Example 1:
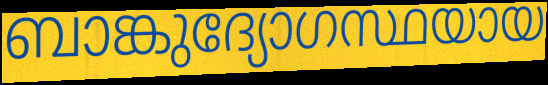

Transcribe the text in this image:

ബാങ്കുദ്യോഗസ്ഥയായ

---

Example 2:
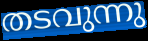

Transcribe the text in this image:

തടവുന്നു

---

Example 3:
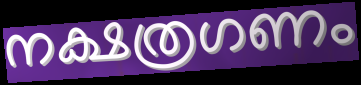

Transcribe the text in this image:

നക്ഷത്രഗണം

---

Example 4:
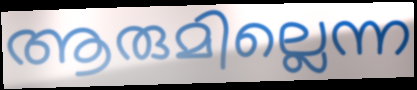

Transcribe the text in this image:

ആരുമില്ലെന്ന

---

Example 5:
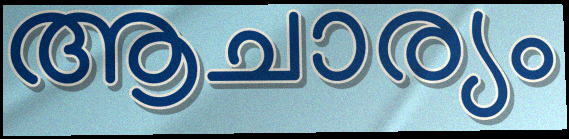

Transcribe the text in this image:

ആചാര്യം